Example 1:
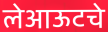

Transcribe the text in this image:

लेआऊटचे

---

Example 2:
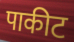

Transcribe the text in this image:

पाकीट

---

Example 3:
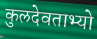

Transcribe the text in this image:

कुलदेवताभ्यो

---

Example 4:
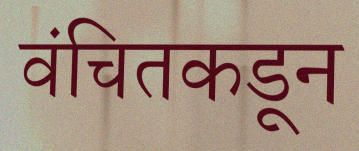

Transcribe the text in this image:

वंचितकडून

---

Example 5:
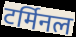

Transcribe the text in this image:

टर्मिनल